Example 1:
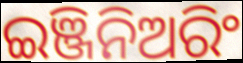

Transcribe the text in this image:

ଇଞ୍ଜିନିଅରିଂ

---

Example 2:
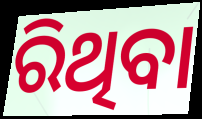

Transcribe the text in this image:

ରିଥିବା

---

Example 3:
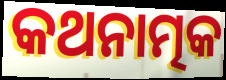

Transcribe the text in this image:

କଥନାତ୍ମକ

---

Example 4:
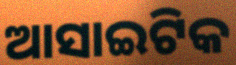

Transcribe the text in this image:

ଆସାଇଟିକ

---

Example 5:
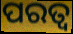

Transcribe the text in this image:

ପରତ୍ୱ